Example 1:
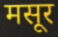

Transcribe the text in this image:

मसूर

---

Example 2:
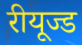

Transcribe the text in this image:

रीयूज्ड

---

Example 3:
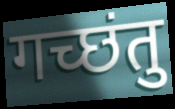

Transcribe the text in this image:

गच्छंतु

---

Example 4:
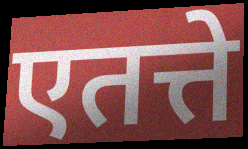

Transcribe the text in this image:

एतत्ते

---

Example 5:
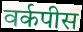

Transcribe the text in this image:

वर्कपीस